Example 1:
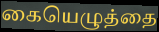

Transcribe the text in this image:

கையெழுத்தை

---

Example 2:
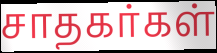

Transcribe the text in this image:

சாதகர்கள்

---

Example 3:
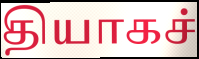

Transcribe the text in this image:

தியாகச்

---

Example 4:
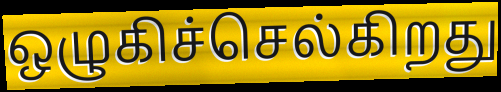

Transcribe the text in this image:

ஒழுகிச்செல்கிறது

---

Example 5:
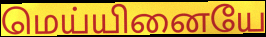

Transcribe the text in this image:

மெய்யினையே